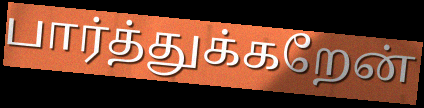
பார்த்துக்கறேன்